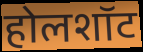
होलशॉट